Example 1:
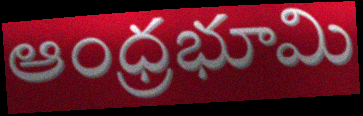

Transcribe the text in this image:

ఆంధ్రభూమి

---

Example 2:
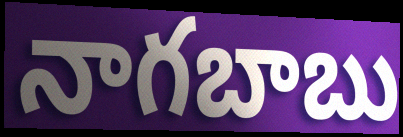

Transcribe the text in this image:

నాగబాబు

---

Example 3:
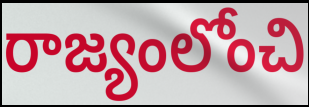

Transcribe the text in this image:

రాజ్యంలోంచి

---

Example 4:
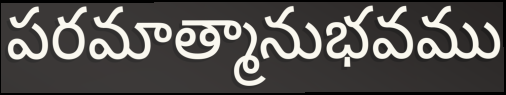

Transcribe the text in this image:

పరమాత్మానుభవము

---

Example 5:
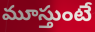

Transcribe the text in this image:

మూస్తుంటే